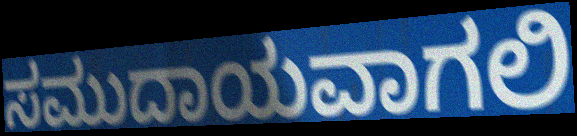
ಸಮುದಾಯವಾಗಲಿ